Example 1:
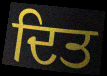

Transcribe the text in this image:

ਦਿਤ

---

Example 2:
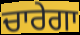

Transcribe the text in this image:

ਚਾਰੇਗਾ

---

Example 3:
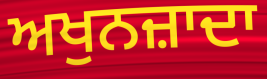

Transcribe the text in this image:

ਅਖੁਨਜ਼ਾਦਾ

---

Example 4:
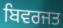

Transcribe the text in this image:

ਬਿਵਰਜਤ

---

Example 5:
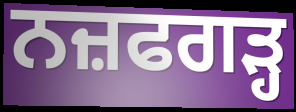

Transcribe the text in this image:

ਨਜ਼ਫਗੜ੍ਹ